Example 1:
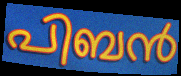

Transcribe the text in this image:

പിബൻ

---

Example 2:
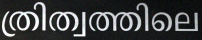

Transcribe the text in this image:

ത്രിത്വത്തിലെ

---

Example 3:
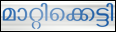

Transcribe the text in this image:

മാറ്റിക്കെട്ടി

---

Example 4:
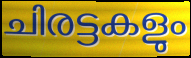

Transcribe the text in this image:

ചിരട്ടകളും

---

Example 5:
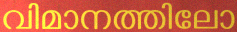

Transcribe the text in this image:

വിമാനത്തിലോ